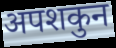
अपशकुन